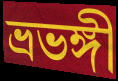
ভ্রভঙ্গী